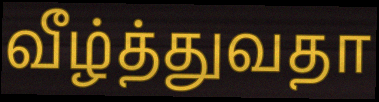
வீழ்த்துவதா